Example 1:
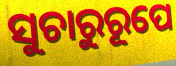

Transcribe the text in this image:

ସୁଚାରୁରୂପେ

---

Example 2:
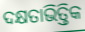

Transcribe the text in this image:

ଦକ୍ଷତାଭିତ୍ତିକ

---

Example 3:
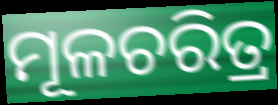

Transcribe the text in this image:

ମୂଳଚରିତ୍ର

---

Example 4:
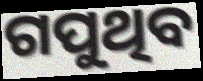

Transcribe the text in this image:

ଗପୁଥିବ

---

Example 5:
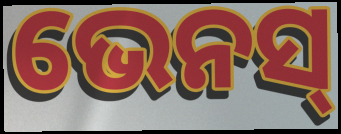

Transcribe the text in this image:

ଭେନସ୍